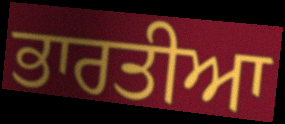
ਭਾਰਤੀਆ